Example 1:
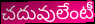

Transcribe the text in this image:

చదువులేంటీ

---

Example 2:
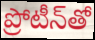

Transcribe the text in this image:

ప్రోటీన్‌తో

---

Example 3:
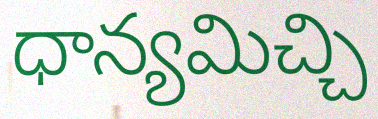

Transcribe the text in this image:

ధాన్యమిచ్చి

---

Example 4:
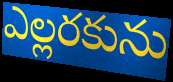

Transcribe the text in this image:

ఎల్లరకును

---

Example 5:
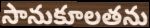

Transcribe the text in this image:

సానుకూలతను